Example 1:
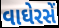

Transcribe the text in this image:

વાઘેરસેં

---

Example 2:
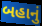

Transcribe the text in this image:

બહાનું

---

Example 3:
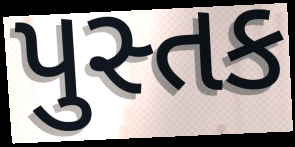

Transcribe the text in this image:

પુસ્તક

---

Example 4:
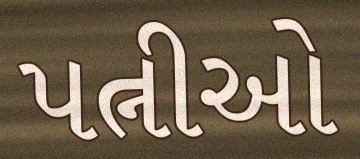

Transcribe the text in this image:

પત્નીઓ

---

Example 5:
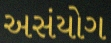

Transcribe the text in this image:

અસંયોગ